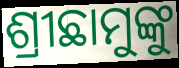
ଶ୍ରୀଛାମୁଙ୍କୁ